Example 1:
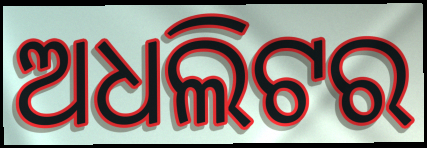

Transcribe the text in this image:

ଅଧଲିଟର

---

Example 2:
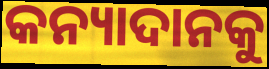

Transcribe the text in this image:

କନ୍ୟାଦାନକୁ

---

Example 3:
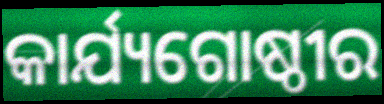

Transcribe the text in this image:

କାର୍ଯ୍ୟଗୋଷ୍ଠୀର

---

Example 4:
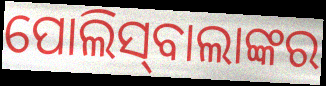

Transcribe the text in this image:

ପୋଲିସ୍‌ବାଲାଙ୍କର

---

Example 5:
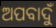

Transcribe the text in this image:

ଅପବାଦୁଁ